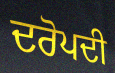
ਦਰੋਪਦੀ